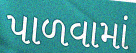
પાળવામાં